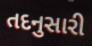
તદનુસારી